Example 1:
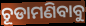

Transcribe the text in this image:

ଚୂଡାମଣିବାବୁ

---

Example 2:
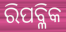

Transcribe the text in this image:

ରିପବ୍ଳିକ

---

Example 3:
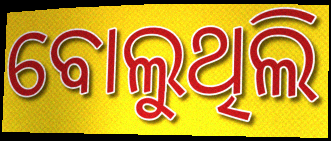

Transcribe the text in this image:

ବୋଲୁଥିଲି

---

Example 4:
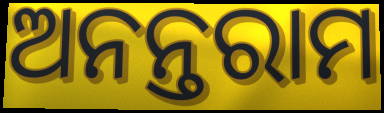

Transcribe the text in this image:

ଅନନ୍ତରାମ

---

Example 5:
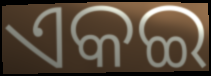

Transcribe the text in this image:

ଏକଇ